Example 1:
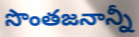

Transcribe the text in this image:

సొంతజనాన్నీ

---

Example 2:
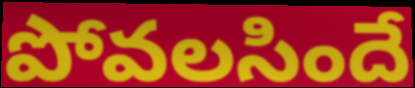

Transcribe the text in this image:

పోవలసిందే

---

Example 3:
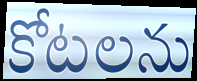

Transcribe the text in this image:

కోటలను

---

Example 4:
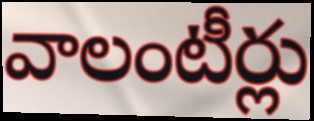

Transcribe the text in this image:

వాలంటీర్లు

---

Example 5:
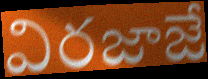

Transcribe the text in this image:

విరజాజే